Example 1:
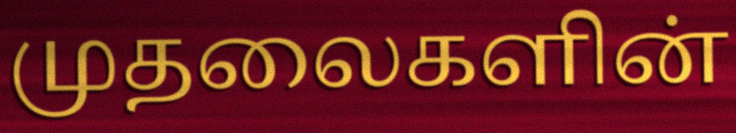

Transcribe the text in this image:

முதலைகளின்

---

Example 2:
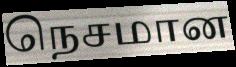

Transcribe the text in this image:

நெசமான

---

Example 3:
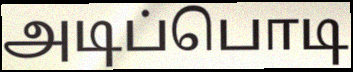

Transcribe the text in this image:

அடிப்பொடி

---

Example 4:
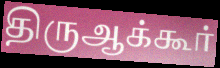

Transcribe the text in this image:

திருஆக்கூர்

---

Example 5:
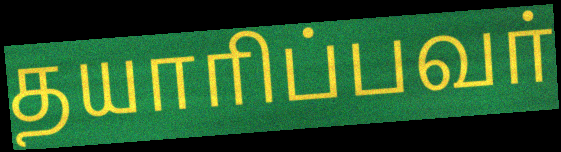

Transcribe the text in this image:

தயாரிப்பவர்